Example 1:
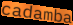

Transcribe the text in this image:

cadamba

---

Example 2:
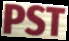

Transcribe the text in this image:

PST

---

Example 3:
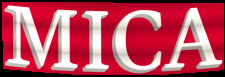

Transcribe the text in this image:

MICA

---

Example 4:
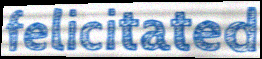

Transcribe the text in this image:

felicitated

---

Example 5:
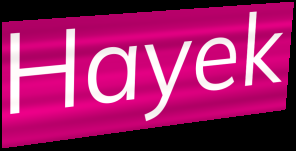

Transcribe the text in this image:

Hayek